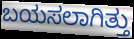
ಬಯಸಲಾಗಿತ್ತು